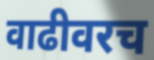
वाढीवरच